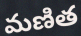
మణిత